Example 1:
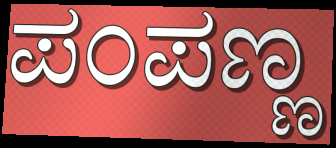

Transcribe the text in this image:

ಪಂಪಣ್ಣ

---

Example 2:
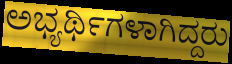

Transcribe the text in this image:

ಅಭ್ಯರ್ಥಿಗಳಾಗಿದ್ದರು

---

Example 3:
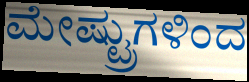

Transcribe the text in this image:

ಮೇಷ್ಟ್ರುಗಳಿಂದ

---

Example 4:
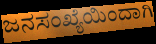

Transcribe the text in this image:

ಜನಸಂಖ್ಯೆಯಿಂದಾಗಿ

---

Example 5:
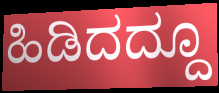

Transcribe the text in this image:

ಹಿಡಿದದ್ದೂ